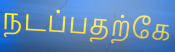
நடப்பதற்கே